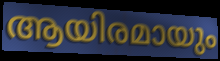
ആയിരമായും